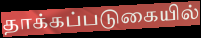
தாக்கப்படுகையில்